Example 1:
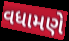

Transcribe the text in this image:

વધામણે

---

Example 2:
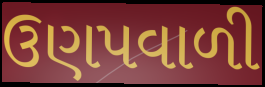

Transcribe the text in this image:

ઉણપવાળી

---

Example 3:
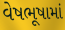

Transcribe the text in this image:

વેષભૂષામાં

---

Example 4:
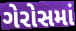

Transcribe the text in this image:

ગેરોસમાં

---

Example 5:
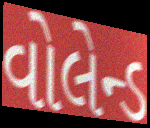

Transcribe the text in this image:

વોલેન્ડ